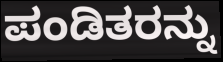
ಪಂಡಿತರನ್ನು